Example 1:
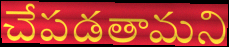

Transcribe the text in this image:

చేపడతామని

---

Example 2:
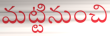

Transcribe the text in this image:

మట్టినుంచి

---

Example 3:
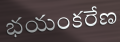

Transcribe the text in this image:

భయంకరేణ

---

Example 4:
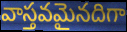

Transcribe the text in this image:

వాస్తవమైనదిగా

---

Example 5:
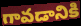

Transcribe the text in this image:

గావడానికి